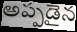
అప్పడైన